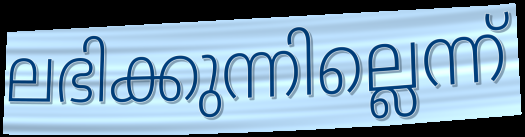
ലഭിക്കുന്നില്ലെന്ന്